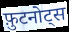
फ़ुटनोट्स